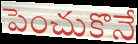
పెంచుకొనే